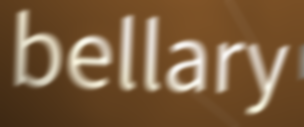
bellary